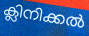
ക്ലിനിക്കൽ